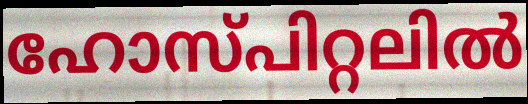
ഹോസ്പിറ്റലിൽ